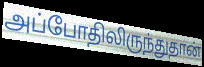
அப்போதிலிருந்துதான்